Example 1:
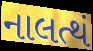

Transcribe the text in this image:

નાલત્થં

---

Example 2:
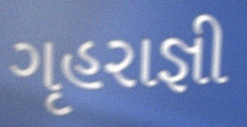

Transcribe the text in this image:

ગૃહરાજ્ઞી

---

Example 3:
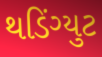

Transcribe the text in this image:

થડિંગ્યુટ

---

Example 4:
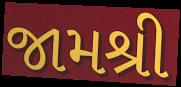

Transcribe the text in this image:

જામશ્રી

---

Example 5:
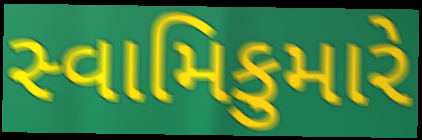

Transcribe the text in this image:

સ્વામિકુમારે